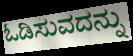
ಓಡಿಸುವದನ್ನು